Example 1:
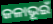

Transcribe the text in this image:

ଜଳାଭୂଇଁ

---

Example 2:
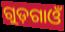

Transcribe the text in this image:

ଗୁଡ଼ଗାଓଁ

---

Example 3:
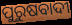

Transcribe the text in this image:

ପୁରୁଷବାଦୀ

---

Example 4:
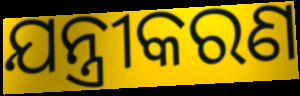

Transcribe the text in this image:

ଯନ୍ତ୍ରୀକରଣ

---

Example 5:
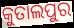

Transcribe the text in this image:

କୁତାଲପୁର